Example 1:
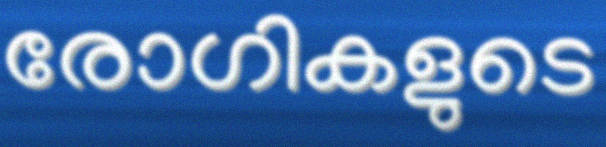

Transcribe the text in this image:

രോഗികളുടെ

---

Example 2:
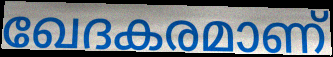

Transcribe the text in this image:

ഖേദകരമാണ്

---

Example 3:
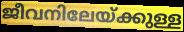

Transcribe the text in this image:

ജീവനിലേയ്ക്കുള്ള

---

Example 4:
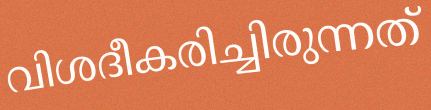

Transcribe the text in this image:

വിശദീകരിച്ചിരുന്നത്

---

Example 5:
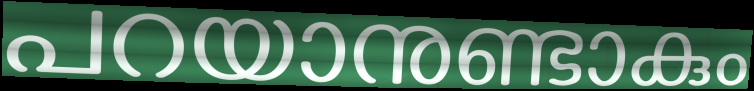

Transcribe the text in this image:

പറയാനുണ്ടാകും